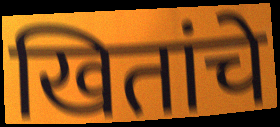
खितांचे